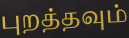
புறத்தவும்